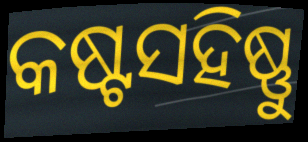
କଷ୍ଟସହିଷ୍ଣୁ